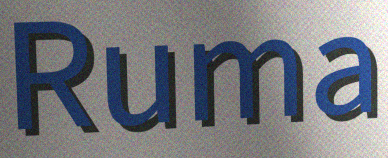
Ruma